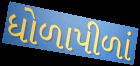
ધોળાપીળાં